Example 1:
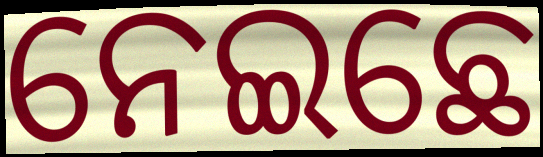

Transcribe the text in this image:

ନେଇଛେ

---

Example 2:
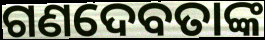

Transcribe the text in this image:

ଗଣଦେବତାଙ୍କ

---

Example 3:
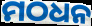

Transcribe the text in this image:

ମଠଧନ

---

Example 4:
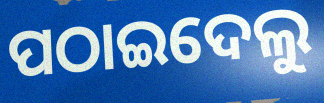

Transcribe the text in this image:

ପଠାଇଦେଲୁ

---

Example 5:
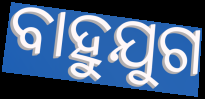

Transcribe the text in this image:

ବାହୁଯୁଗ